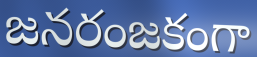
జనరంజకంగా